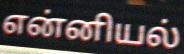
என்னியல்